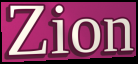
Zion